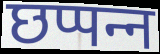
छप्पन्न